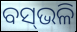
ବସ୍‌ଭଳି